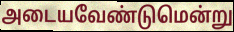
அடையவேண்டுமென்று